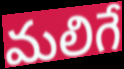
మలిగే